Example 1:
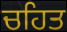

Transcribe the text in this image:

ਚਹਿਤ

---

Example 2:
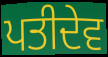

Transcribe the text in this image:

ਪਤੀਦੇਵ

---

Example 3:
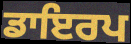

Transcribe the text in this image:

ਡਾਇਰਪ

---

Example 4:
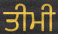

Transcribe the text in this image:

ਤੀਮੀ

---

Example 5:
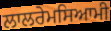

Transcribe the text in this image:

ਲਾਲਰੇਮਸਿਆਮੀ